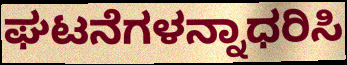
ಘಟನೆಗಳನ್ನಾಧರಿಸಿ